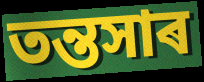
তন্তসাৰ